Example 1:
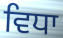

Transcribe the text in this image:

ਵਿਧਾ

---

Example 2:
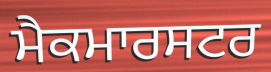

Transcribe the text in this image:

ਮੈਕਮਾਰਸਟਰ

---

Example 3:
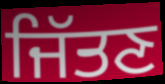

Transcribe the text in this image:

ਜਿੱਤਣ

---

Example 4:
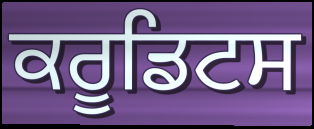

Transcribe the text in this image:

ਕਰੂਡਿਟਸ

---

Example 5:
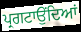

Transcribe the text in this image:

ਪ੍ਰਗਟਾਉਂਦਿਆਂ